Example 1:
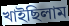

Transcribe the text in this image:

খাইছিলাম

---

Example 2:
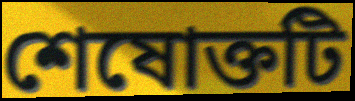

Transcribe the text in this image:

শেষোক্তটি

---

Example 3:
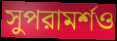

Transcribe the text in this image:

সুপরামর্শও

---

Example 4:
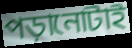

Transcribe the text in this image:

পড়ানোটাই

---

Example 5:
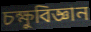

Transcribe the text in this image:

চক্ষুবিজ্ঞান